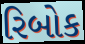
રિબોક